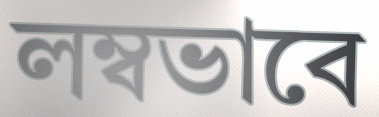
লম্বভাবে